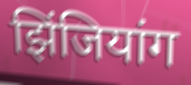
झिंजियांग